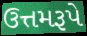
ઉત્તમરૂપે